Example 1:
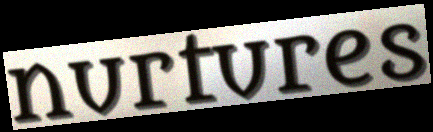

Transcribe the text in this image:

nurtures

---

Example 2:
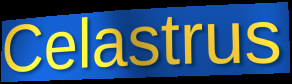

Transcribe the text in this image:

Celastrus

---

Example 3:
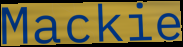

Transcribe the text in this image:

Mackie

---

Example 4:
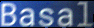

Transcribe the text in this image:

Basal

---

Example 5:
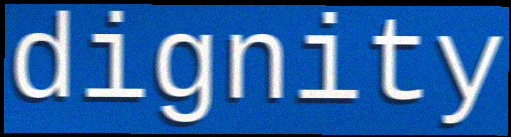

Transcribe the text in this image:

dignity